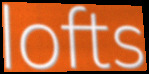
lofts